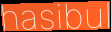
hasibul